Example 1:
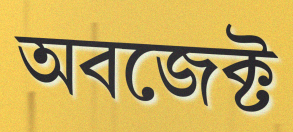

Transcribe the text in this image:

অবজেক্ট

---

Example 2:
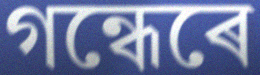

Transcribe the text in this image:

গন্ধেৰে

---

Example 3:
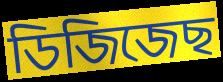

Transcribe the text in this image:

ডিজিজেছ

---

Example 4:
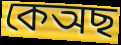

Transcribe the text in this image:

কেঅছ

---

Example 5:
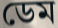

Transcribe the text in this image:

ডেম